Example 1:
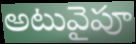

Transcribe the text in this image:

అటువైపూ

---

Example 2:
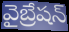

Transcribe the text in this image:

వైబ్రేషన్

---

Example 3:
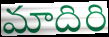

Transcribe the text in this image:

మాదిరి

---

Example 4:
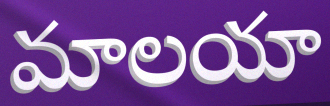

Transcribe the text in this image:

మాలయా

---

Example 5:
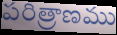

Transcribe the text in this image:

పరిత్రాణము